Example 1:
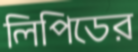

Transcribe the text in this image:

লিপিডের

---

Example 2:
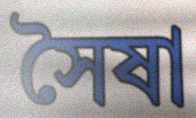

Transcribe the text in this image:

সৈষা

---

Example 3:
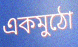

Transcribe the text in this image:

একমুঠো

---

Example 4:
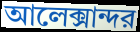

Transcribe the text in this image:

আলেক্সান্দর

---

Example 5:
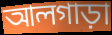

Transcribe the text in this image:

আলগাড়া